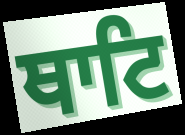
ਥਾਟਿ